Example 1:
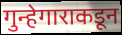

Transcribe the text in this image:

गुन्हेगाराकडून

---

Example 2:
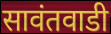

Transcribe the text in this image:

सावंतवाडी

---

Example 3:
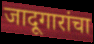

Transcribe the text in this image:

जादूगारांचा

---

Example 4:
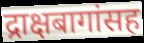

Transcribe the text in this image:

द्राक्षबागांसह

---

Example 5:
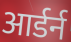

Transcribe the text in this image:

आर्डर्न